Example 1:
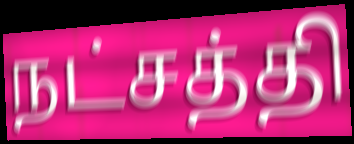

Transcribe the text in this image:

நட்சத்தி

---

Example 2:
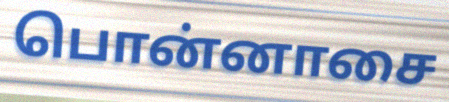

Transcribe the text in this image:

பொன்னாசை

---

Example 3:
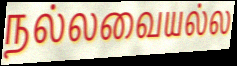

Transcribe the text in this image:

நல்லவையல்ல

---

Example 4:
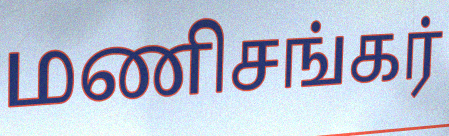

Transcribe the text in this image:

மணிசங்கர்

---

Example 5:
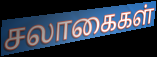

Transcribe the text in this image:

சலாகைகள்